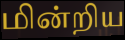
மின்றிய